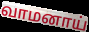
வாமனாய்